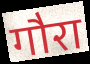
गौरा